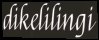
dikelilingi